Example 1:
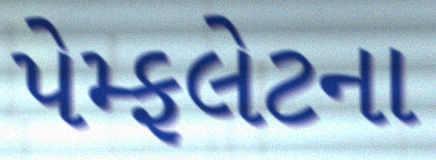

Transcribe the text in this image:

પેમ્ફલેટના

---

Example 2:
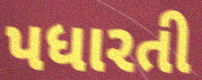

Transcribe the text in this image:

પધારતી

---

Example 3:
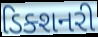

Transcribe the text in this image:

ડિક્શનરી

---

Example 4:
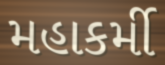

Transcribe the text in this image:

મહાકર્મી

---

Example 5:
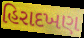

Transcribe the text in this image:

હિરાદખણ